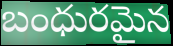
బంధురమైన